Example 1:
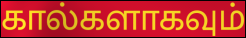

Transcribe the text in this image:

கால்களாகவும்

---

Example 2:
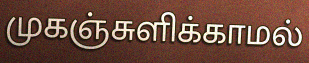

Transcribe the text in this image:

முகஞ்சுளிக்காமல்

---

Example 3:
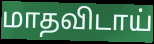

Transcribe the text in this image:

மாதவிடாய்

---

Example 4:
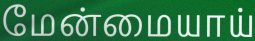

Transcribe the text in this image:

மேன்மையாய்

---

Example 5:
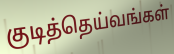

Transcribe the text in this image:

குடித்தெய்வங்கள்